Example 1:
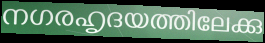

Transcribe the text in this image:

നഗരഹൃദയത്തിലേക്കു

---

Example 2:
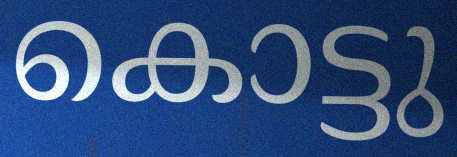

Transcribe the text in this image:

കൊട്ടു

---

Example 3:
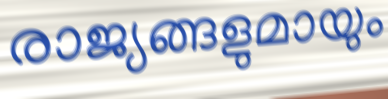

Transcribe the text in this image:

രാജ്യങ്ങളുമായും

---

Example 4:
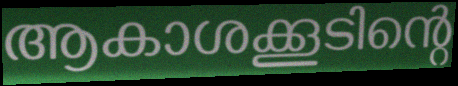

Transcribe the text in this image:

ആകാശക്കൂടിന്റെ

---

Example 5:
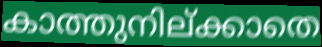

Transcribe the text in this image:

കാത്തുനില്ക്കാതെ